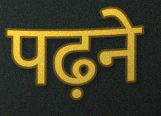
पढ़ने